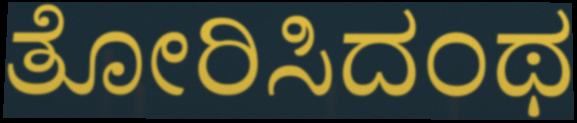
ತೋರಿಸಿದಂಥ